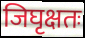
जिघृक्षतः